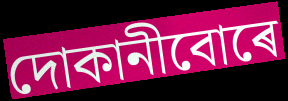
দোকানীবোৰে